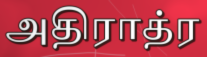
அதிராத்ர